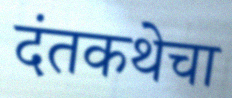
दंतकथेचा